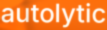
autolytic